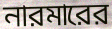
নারমারের